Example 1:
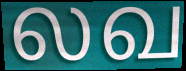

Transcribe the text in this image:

லவ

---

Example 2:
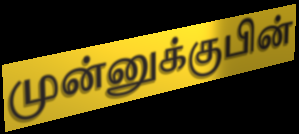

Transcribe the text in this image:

முன்னுக்குபின்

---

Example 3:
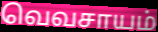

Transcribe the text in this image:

வெவசாயம்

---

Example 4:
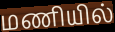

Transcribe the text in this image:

மணியில்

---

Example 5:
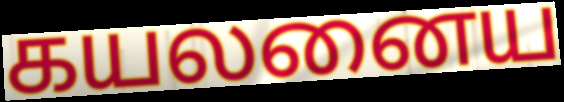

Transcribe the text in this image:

கயலனைய